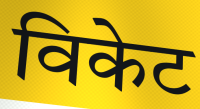
विकेट